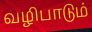
வழிபாடும்